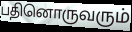
பதினொருவரும்